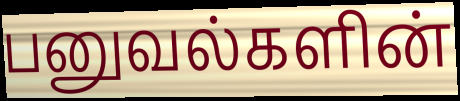
பனுவல்களின்